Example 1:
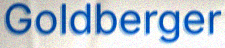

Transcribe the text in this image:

Goldberger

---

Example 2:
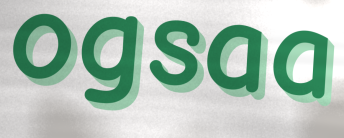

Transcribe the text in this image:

ogsaa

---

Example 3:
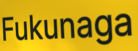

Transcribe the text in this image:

Fukunaga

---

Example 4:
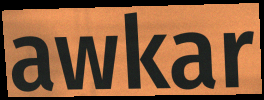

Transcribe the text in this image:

awkar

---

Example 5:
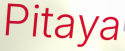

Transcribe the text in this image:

Pitaya